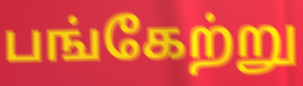
பங்கேற்று